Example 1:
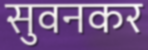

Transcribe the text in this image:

सुवनकर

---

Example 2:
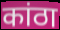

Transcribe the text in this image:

कांठा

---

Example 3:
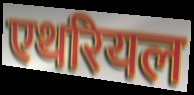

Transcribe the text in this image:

एथरियल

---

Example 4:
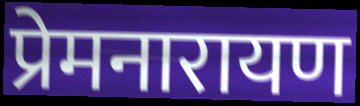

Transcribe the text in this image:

प्रेमनारायण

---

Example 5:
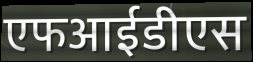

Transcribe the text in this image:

एफआईडीएस